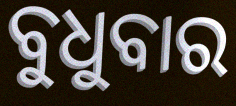
ବୁଧୁବାର